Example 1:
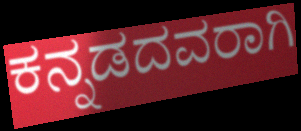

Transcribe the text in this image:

ಕನ್ನಡದವರಾಗಿ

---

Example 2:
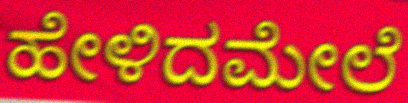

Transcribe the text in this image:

ಹೇಳಿದಮೇಲೆ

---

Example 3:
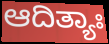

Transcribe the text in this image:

ಆದಿತ್ಯಾಃ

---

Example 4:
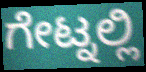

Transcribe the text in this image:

ಗೇಟ್ನಲ್ಲಿ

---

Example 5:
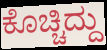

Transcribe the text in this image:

ಕೊಚ್ಚಿದ್ದು